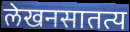
लेखनसातत्य